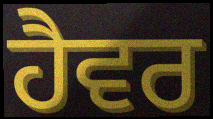
ਹੈਵਰ